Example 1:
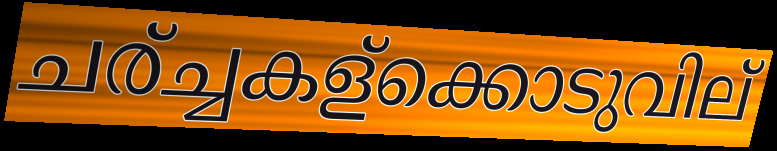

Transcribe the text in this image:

ചര്ച്ചകള്ക്കൊടുവില്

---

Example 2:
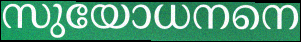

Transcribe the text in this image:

സുയോധനനെ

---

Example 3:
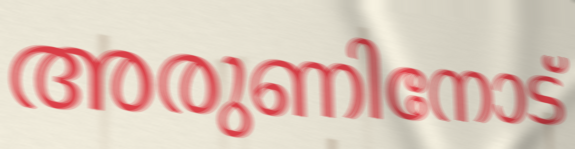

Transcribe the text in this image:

അരുണിനോട്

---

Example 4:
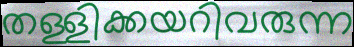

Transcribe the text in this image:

തള്ളിക്കയറിവരുന്ന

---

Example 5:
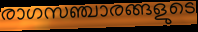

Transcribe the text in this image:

രാഗസഞ്ചാരങ്ങളുടെ